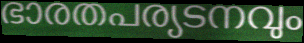
ഭാരതപര്യടനവും